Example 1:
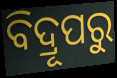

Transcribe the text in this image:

ବିଦ୍ରୂପରୁ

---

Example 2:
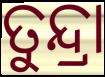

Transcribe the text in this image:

ତୁନ୍ଦ୍ରା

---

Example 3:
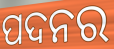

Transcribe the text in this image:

ପଦନର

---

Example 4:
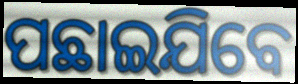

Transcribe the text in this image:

ପଛାଇଯିବେ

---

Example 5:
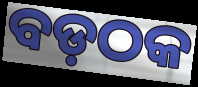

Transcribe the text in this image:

ବଡ଼ଠକ